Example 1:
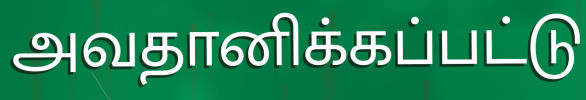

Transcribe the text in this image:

அவதானிக்கப்பட்டு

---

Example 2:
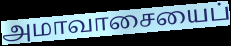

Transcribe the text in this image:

அமாவாசையைப்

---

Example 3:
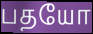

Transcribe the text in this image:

பதயோ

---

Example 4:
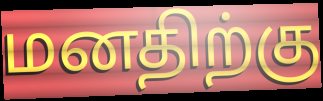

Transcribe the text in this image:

மனதிற்கு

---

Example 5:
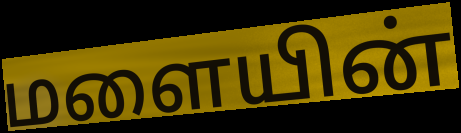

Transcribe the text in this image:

மளையின்